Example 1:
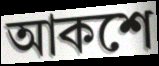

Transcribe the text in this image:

আকশে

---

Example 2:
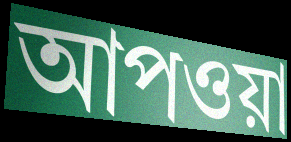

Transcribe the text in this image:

আপওয়া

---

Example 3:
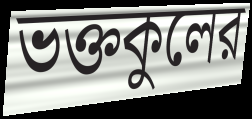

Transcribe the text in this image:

ভক্তকুলের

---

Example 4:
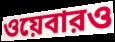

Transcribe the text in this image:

ওয়েবারও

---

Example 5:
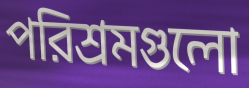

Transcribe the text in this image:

পরিশ্রমগুলো